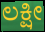
ಲಕ್ಷೀ